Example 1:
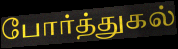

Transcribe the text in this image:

போர்த்துகல்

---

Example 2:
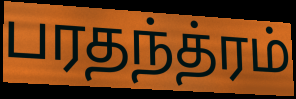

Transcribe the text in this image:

பரதந்த்ரம்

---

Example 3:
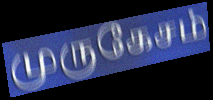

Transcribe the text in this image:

முருகேசம்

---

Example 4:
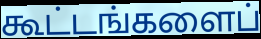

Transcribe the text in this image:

கூட்டங்களைப்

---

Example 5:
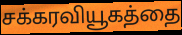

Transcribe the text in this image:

சக்கரவியூகத்தை